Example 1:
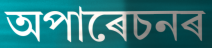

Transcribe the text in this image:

অপাৰেচনৰ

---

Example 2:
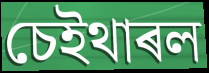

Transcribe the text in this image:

চেইথাৰল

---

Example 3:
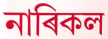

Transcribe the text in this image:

নাৰিকল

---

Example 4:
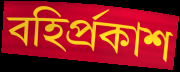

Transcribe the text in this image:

বহিৰ্প্ৰকাশ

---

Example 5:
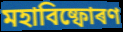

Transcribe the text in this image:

মহাবিষ্ফোৰণ